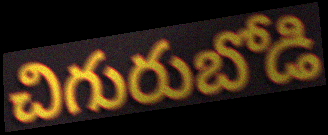
చిగురుబోడి